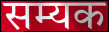
सम्यक